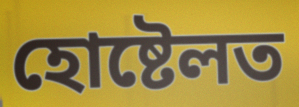
হোষ্টেলত